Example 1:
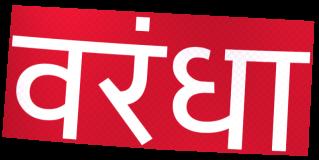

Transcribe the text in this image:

वरंधा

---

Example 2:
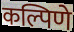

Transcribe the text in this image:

कल्पिणे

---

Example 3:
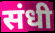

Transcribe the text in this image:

संधी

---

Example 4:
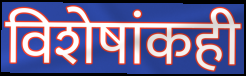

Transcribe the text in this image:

विशेषांकही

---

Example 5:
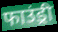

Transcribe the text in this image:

फाउंड्री